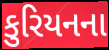
કુરિયનના